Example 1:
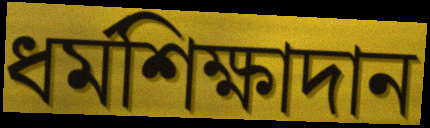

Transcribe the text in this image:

ধর্মশিক্ষাদান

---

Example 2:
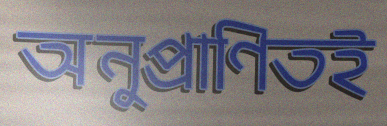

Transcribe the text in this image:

অনুপ্রাণিতই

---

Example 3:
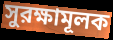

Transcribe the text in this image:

সুরক্ষামূলক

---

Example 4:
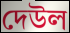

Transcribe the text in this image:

দেউল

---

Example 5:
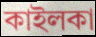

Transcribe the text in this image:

কাইলকা